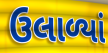
ઉલાળ્યાં